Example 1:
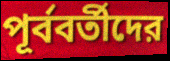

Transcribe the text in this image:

পূর্ববর্তীদের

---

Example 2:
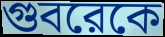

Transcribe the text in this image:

গুবরেকে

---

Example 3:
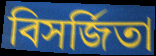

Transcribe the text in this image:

বিসর্জিতা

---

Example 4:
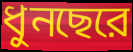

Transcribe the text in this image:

ধুনছেরে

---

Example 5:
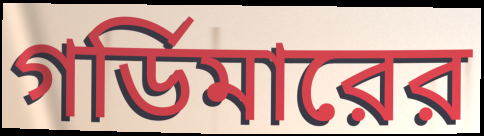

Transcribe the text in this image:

গর্ডিমারের